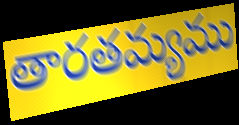
తారతమ్యము